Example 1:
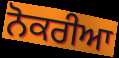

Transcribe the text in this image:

ਨੋਕਰੀਆ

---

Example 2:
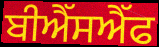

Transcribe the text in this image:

ਬੀਐੱਸਐੱਫ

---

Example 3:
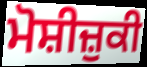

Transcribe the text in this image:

ਮੋਸ਼ੀਜ਼ੁਕੀ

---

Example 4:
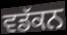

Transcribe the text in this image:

ਵਡੱਕਨ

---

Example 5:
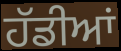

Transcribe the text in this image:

ਹੱਡੀਆਂ